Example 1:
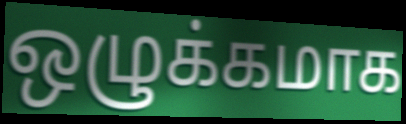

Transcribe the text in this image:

ஒழுக்கமாக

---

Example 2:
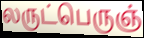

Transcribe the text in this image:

லருட்பெருஞ்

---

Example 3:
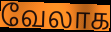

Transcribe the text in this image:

வேலாக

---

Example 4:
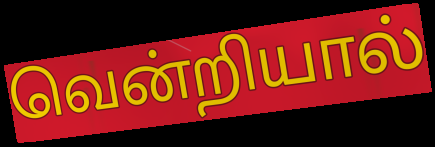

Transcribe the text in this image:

வென்றியால்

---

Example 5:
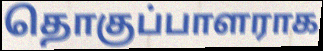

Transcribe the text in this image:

தொகுப்பாளராக